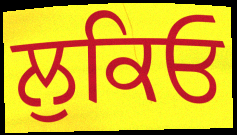
ਲੁਕਿਓ